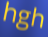
hgh